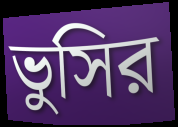
ভুসির